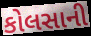
કોલસાની